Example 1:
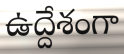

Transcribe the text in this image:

ఉద్దేశంగా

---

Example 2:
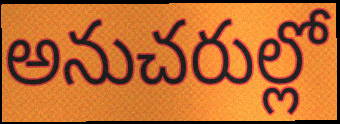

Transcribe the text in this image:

అనుచరుల్లో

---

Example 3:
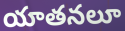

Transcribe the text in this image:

యాతనలూ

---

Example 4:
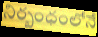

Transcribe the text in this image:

నిర్బంధంలోనే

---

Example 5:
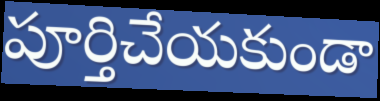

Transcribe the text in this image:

పూర్తిచేయకుండా